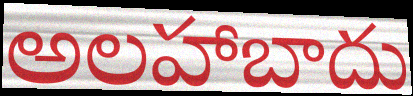
అలహాబాదు